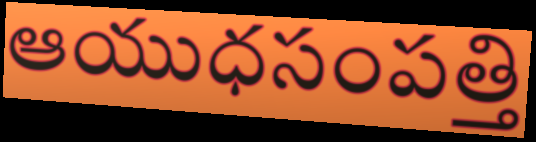
ఆయుధసంపత్తి